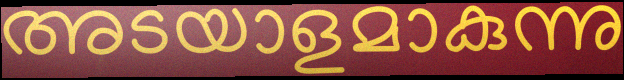
അടയാളമാകുന്നു